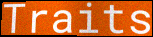
Traits